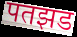
पतझड